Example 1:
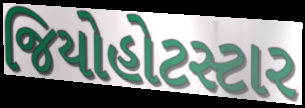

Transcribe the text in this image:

જિયોહોટસ્ટાર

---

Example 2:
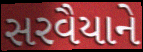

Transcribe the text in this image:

સરવૈયાને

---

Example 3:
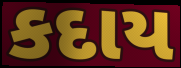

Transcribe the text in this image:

કદાય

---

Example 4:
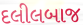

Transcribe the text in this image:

દલીલબાજ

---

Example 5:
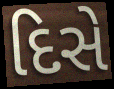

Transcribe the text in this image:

દિસે